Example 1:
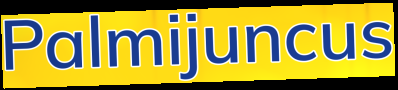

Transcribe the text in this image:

Palmijuncus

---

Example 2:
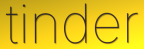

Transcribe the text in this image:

tinder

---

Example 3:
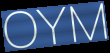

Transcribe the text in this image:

OYM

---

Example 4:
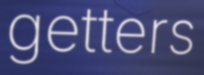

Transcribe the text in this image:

getters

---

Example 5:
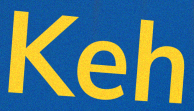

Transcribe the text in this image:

Keh